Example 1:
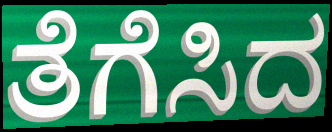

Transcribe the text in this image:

ತೆಗೆಸಿದ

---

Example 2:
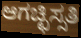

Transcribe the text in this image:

ಆಗಚ್ಛಿಸ್ಸತಿ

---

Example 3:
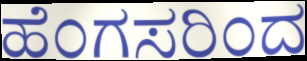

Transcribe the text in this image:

ಹೆಂಗಸರಿಂದ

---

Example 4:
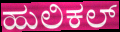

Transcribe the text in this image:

ಹುಲಿಕಲ್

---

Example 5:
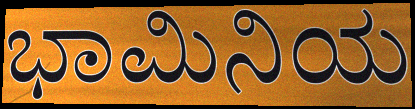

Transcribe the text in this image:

ಭಾಮಿನಿಯ